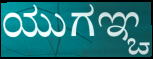
ಯುಗಞ್ಚ